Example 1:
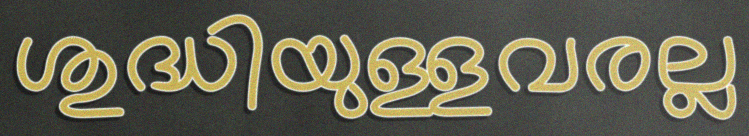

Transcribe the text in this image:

ശുദ്ധിയുള്ളവരല്ല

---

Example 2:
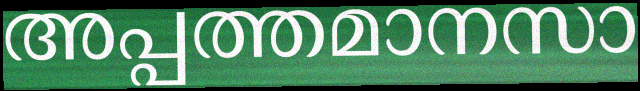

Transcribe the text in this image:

അപ്പത്തമാനസാ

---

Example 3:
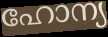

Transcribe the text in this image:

ഹോന്യ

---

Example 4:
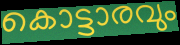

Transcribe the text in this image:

കൊട്ടാരവും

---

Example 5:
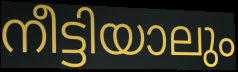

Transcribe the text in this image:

നീട്ടിയാലും